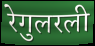
रेगुलरली